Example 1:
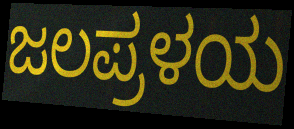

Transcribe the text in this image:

ಜಲಪ್ರಳಯ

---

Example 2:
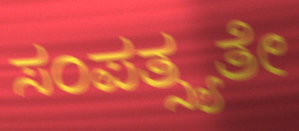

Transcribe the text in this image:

ಸಂಪತ್ಸ್ಯತೇ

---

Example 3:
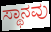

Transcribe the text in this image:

ಸ್ಥಾನವು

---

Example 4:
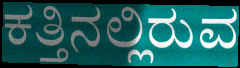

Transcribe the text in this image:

ಕತ್ತಿನಲ್ಲಿರುವ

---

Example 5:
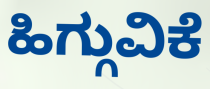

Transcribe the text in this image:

ಹಿಗ್ಗುವಿಕೆ